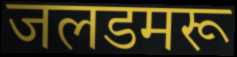
जलडमरू